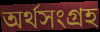
অর্থসংগ্রহ